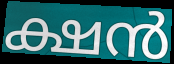
ക്ഷൻ